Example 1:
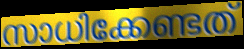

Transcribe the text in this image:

സാധിക്കേണ്ടത്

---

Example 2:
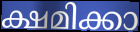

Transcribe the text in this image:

ക്ഷമിക്കാ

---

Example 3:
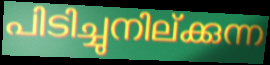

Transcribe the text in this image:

പിടിച്ചുനില്ക്കുന്ന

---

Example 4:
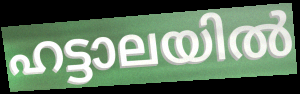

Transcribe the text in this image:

ഹട്ടാലയിൽ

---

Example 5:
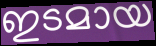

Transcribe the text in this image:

ഇടമായ